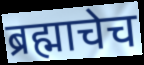
ब्रह्माचेच